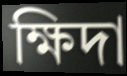
ক্ষিদা